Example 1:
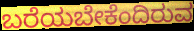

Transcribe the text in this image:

ಬರೆಯಬೇಕೆಂದಿರುವ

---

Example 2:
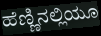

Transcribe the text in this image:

ಹೆಣ್ಣಿನಲ್ಲಿಯೂ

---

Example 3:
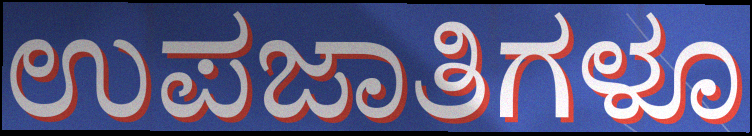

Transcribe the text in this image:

ಉಪಜಾತಿಗಳೂ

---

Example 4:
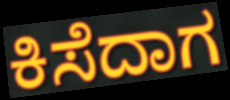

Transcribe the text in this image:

ಕಿಸೆದಾಗ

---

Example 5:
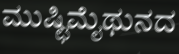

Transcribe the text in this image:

ಮುಷ್ಟಿಮೈಥುನದ